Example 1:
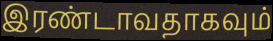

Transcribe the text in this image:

இரண்டாவதாகவும்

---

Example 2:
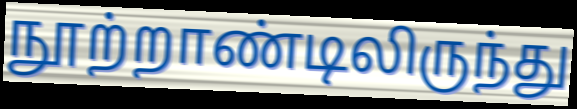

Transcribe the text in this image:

நூற்றாண்டிலிருந்து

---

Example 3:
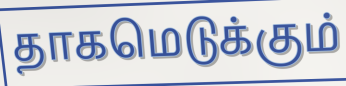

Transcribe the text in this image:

தாகமெடுக்கும்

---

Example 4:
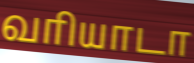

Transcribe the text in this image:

வரியாடா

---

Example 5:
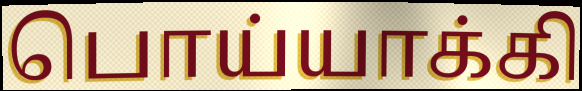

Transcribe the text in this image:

பொய்யாக்கி